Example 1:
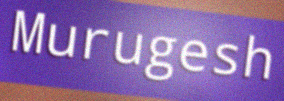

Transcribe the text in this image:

Murugesh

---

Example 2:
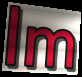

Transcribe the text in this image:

Im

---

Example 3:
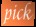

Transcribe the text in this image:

pick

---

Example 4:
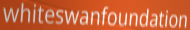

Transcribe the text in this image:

whiteswanfoundation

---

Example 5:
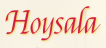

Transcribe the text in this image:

Hoysala